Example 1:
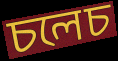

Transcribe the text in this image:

চলেচ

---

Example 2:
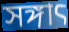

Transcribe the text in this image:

সঙ্গাৎ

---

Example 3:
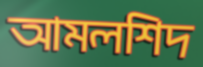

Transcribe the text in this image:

আমলশিদ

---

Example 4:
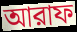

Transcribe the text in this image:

আরাফ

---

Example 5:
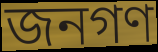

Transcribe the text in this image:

জনগণ